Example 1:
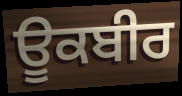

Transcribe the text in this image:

ਊਕਬੀਰ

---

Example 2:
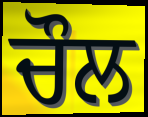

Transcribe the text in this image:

ਚੌਲ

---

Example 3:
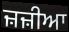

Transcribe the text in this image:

ਜ਼ਜ਼ੀਆ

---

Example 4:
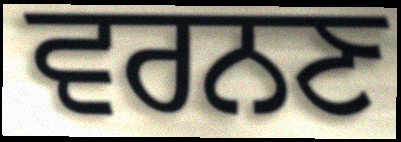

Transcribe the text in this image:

ਵਰਨਣ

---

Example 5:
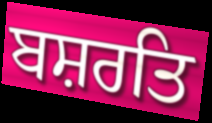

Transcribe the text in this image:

ਬਸ਼ਰਤਿ